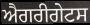
ਐਗਰੀਗੇਟਸ